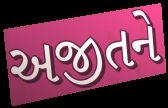
અજીતને